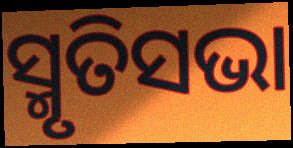
ସ୍ମୃତିସଭା